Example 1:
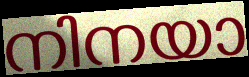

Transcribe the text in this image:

നിനയാ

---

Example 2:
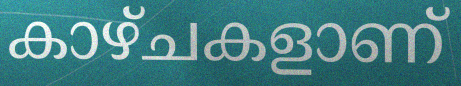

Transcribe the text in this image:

കാഴ്ചകളാണ്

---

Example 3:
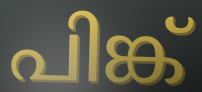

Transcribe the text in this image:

പിങ്ക്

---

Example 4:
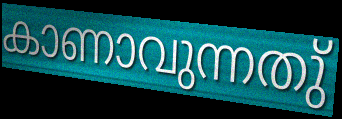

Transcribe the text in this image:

കാണാവുന്നതു്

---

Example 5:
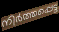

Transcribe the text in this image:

നിർത്തപ്പെട്ട